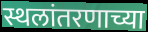
स्थलांतरणाच्या